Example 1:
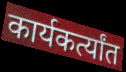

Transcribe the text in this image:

कार्यकर्त्यांत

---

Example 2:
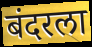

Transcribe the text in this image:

बंदरला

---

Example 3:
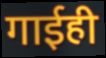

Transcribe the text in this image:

गाईही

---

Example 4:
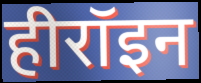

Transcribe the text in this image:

हीरॉइन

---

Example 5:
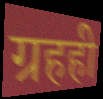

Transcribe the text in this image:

ग्रहही